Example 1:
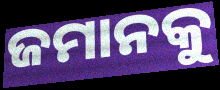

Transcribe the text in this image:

ଜମାନକୁ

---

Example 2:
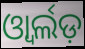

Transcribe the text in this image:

ଓ୍ୱାର୍ଲଡ଼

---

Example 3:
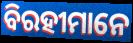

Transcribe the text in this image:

ବିରହୀମାନେ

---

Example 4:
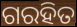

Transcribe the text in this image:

ଗରହିତ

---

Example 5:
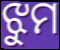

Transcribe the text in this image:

ଝୁମ